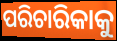
ପରିଚାରିକାକୁ